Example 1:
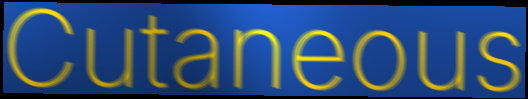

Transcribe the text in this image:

Cutaneous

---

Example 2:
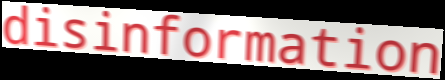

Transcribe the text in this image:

disinformation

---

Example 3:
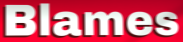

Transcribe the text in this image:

Blames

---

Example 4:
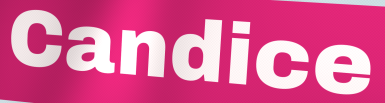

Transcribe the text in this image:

Candice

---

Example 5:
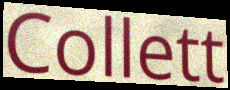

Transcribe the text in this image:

Collett